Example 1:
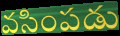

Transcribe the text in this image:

వసింపడు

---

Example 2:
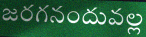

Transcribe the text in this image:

జరగనందువల్ల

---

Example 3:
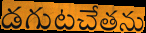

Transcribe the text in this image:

డగుటచేతను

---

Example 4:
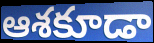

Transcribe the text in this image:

ఆశకూడా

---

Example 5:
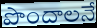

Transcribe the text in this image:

పొందాలనే